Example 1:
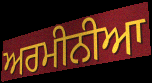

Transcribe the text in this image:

ਅਰਮੀਨੀਆ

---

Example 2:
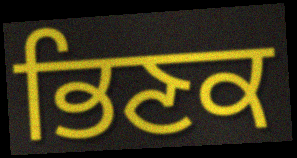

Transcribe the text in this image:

ਭਿਣਕ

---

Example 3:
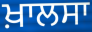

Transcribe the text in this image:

ਖ਼ਾਲਸਾ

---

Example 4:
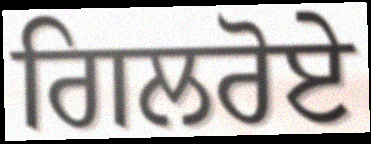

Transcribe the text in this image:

ਗਿਲਰੋਏ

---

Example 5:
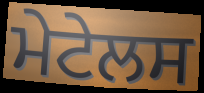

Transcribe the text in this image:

ਮੇਟੇਲਸ